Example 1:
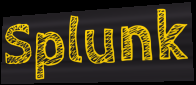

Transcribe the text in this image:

Splunk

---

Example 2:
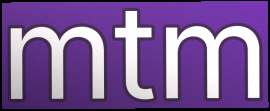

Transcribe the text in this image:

mtm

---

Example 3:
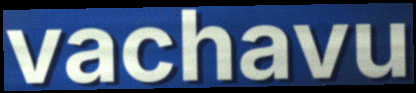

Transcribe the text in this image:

vachavu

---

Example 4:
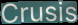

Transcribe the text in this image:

Crusis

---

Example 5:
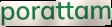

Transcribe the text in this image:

porattam